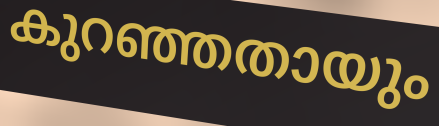
കുറഞ്ഞതായും